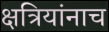
क्षत्रियांनाच